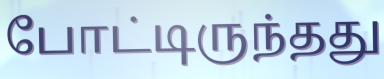
போட்டிருந்தது